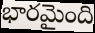
భారమైంది